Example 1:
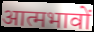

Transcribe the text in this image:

आत्मभावों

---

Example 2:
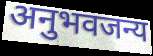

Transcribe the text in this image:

अनुभवजन्य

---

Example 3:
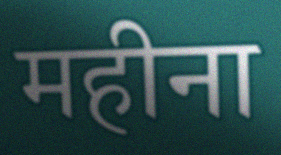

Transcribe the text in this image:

महीना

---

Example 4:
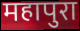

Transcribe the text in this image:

महापुरा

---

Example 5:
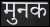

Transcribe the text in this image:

मुनक